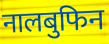
नालबुफिन